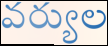
వర్యుల